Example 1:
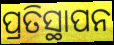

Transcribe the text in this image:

ପ୍ରତିସ୍ଥାପନ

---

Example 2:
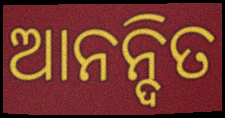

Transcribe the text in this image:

ଆନନ୍ଦିତ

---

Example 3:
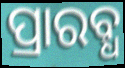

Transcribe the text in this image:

ପ୍ରାରବ୍ଧ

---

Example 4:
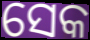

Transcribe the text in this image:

ସେକ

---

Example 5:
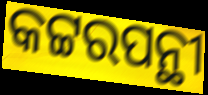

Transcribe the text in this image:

କଟ୍ଟରପନ୍ଥୀ